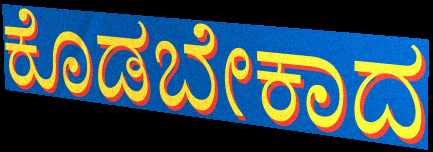
ಕೊಡಬೇಕಾದ